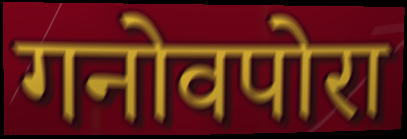
गनोवपोरा